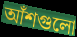
আঁশগুলো